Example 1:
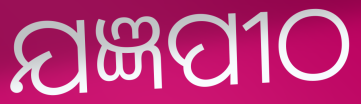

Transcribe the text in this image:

ଯଜ୍ଞପୀଠ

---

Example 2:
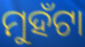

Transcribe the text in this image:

ମୁହଁଟା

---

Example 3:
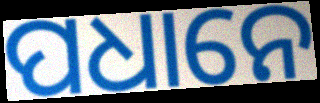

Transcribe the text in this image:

ପଧାନେ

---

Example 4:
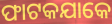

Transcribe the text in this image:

ଫାଟକଯାକେ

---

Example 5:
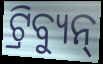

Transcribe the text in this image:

ଟ୍ରିବ୍ୟୁନ୍